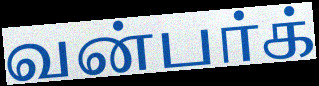
வன்பர்க்